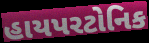
હાયપરટોનિક